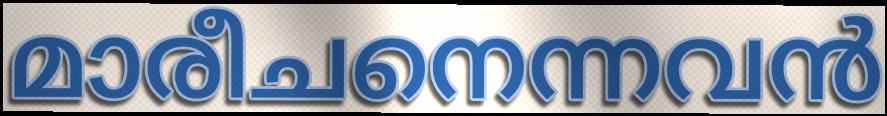
മാരീചനെന്നവൻ